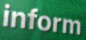
inform